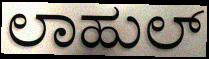
ಲಾಹುಲ್